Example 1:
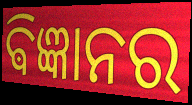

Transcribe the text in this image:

ଵିଜ୍ଞାନର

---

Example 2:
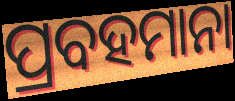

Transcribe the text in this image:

ପ୍ରବହମାନା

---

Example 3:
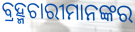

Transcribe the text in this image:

ବ୍ରହ୍ମଚାରୀମାନଙ୍କର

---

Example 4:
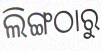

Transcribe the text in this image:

ଲିଙ୍ଗଠାରୁ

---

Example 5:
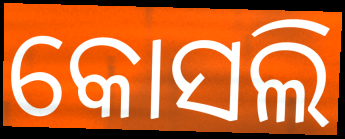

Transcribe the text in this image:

କୋସଲି